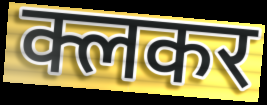
क्लकर